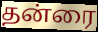
தன்ரை